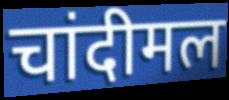
चांदीमल